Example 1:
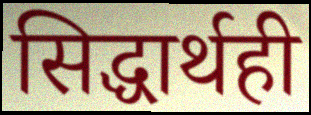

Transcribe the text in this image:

सिद्धार्थही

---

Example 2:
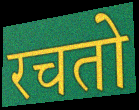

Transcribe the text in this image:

रचतो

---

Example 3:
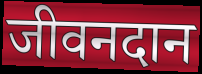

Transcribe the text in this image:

जीवनदान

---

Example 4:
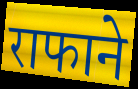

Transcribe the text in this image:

राफाने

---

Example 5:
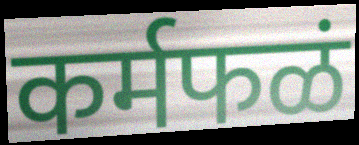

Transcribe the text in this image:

कर्मफळं